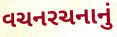
વચનરચનાનું